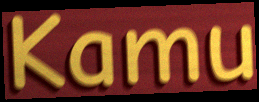
Kamu